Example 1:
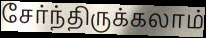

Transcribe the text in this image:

சேர்ந்திருக்கலாம்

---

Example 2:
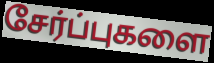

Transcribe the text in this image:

சேர்ப்புகளை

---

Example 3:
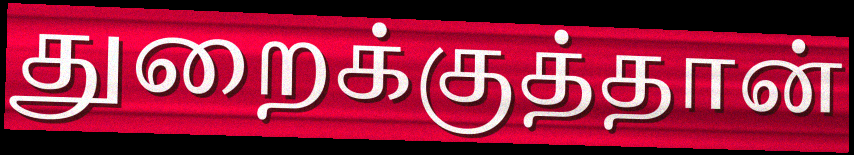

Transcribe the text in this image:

துறைக்குத்தான்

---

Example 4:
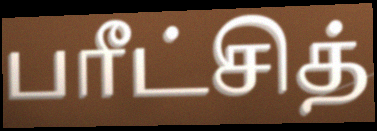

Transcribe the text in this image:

பரீட்சித்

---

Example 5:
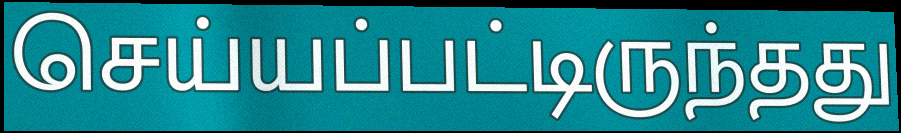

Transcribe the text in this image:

செய்யப்பட்டிருந்தது